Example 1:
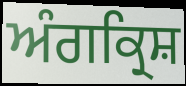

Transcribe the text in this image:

ਅੰਗਕ੍ਰਿਸ਼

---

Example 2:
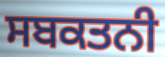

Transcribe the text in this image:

ਸਬਕਤਨੀ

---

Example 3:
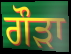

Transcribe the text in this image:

ਗੌੜਾ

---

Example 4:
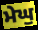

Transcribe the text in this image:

ਮੇਘੁ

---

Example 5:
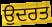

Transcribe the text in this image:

ਉਦਰਤ